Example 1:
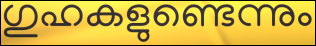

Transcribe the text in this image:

ഗുഹകളുണ്ടെന്നും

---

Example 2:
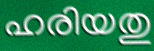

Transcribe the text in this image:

ഹരിയതു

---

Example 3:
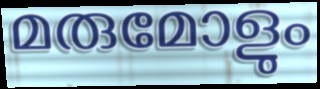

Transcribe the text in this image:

മരുമോളും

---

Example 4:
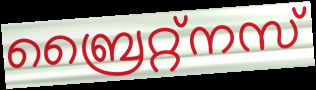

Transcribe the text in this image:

ബ്രൈറ്റ്നസ്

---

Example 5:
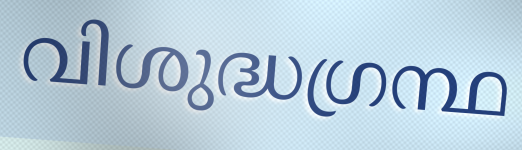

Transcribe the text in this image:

വിശുദ്ധഗ്രന്ഥ